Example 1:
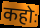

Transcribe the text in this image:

कहोः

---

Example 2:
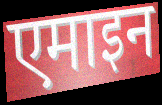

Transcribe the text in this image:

एमाइन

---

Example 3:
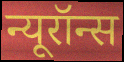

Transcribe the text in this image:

न्यूरॉन्स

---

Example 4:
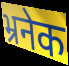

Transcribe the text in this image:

भ्रनेक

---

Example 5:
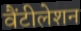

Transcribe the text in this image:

वैंटीलेशन